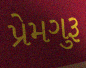
પ્રેમગુરૂ